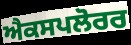
ਐਕਸਪਲੋਰਰ